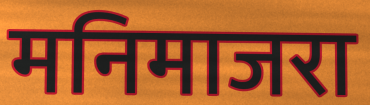
मनिमाजरा